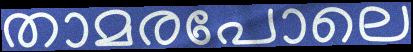
താമരപോലെ